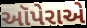
ઑપેરાએ